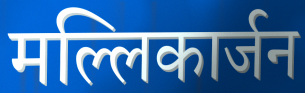
मल्लिकार्जन